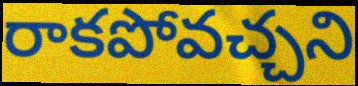
రాకపోవచ్చని